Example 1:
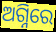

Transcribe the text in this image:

ଅଗ୍ନିରେ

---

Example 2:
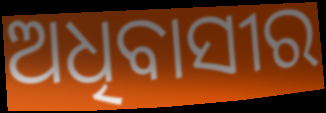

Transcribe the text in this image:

ଅଧିବାସୀର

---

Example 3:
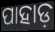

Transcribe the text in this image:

ପାହାଡ଼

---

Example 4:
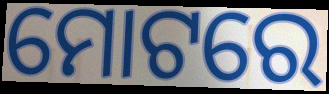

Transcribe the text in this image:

ମୋଟରେ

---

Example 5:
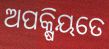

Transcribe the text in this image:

ଅପକ୍ଷିୟତେ